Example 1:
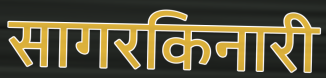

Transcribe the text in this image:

सागरकिनारी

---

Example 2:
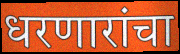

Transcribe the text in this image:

धरणारांचा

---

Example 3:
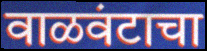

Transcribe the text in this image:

वाळवंटाचा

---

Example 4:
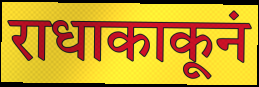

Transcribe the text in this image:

राधाकाकूनं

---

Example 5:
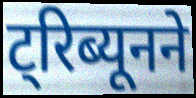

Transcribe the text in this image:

ट्रिब्यूनने